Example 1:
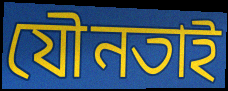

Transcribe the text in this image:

যৌনতাই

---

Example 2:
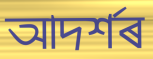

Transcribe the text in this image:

আদৰ্শৰ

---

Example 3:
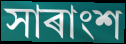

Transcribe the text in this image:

সাৰাংশ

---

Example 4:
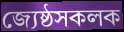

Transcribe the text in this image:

জ্যেষ্ঠসকলক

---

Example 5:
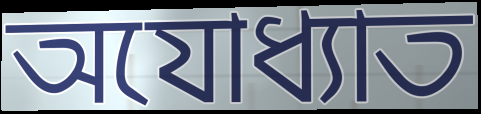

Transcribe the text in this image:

অযোধ্যাত